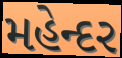
મહેન્દર